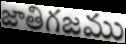
జాతిగజము